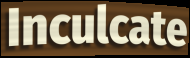
Inculcate